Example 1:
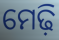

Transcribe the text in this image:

ମେଢ଼ି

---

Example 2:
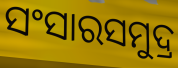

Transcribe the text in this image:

ସଂସାରସମୁଦ୍ର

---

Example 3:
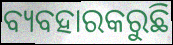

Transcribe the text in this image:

ବ୍ୟବହାରକରୁଛି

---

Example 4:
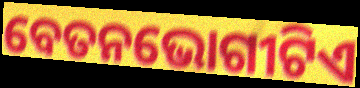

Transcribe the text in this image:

ବେତନଭୋଗୀଟିଏ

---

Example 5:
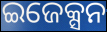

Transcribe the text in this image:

ଇଜେକ୍ସନ